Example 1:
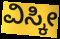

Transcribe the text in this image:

ವಿಸ್ಕೀ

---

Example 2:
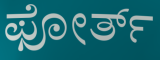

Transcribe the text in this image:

ಫೋರ್ತ್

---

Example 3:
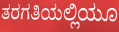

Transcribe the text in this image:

ತರಗತಿಯಲ್ಲಿಯೂ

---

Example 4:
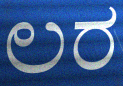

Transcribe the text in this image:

ಲರ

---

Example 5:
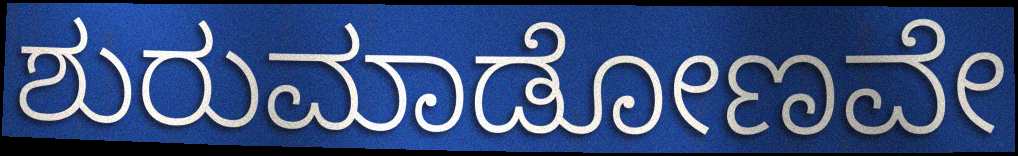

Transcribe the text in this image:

ಶುರುಮಾಡೋಣವೇ